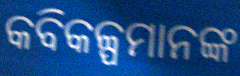
କବିକଳ୍ପମାନଙ୍କ